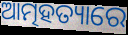
ଆତ୍ମହତ୍ୟାରେ